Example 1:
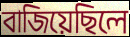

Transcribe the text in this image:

বাজিয়েছিলে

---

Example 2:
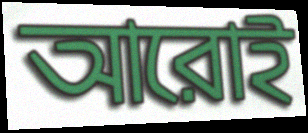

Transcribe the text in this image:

আরোই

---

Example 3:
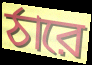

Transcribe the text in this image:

ঠারে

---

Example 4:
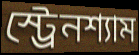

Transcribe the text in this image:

স্ট্রেনশ্যাম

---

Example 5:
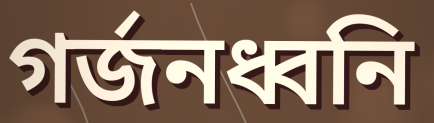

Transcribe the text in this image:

গর্জনধ্বনি